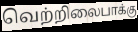
வெற்றிலைபாக்கு